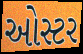
ઓસ્ટર